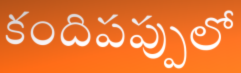
కందిపప్పులో